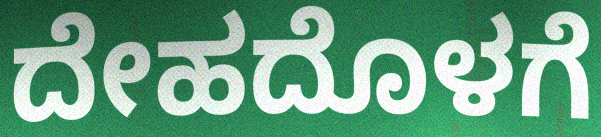
ದೇಹದೊಳಗೆ